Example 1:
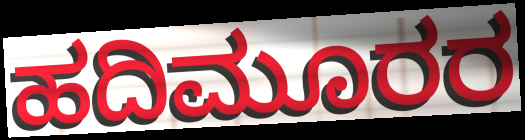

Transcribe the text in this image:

ಹದಿಮೂರರ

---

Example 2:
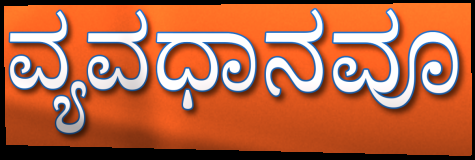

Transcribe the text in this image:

ವ್ಯವಧಾನವೂ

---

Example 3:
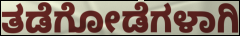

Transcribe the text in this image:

ತಡೆಗೋಡೆಗಳಾಗಿ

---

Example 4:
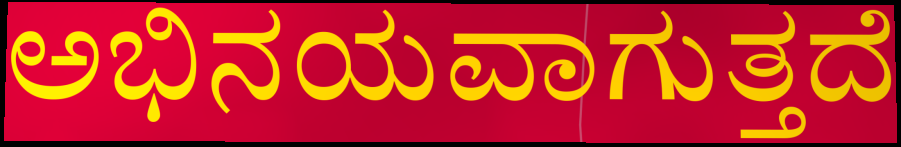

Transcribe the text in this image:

ಅಭಿನಯವಾಗುತ್ತದೆ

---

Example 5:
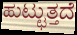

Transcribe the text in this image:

ಹುಟ್ಟುತ್ತದೆ